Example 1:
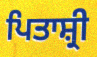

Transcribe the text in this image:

ਪਿਤਾਸ਼੍ਰੀ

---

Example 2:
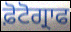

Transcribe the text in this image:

ਫ਼ੋਟੋਗ੍ਰਾਫ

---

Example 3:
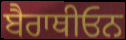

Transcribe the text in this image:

ਬੈਰਾਥੀਓਨ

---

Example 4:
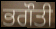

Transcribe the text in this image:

ਭਗੌਤੀ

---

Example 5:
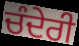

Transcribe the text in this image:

ਚੰਦੇਰੀ